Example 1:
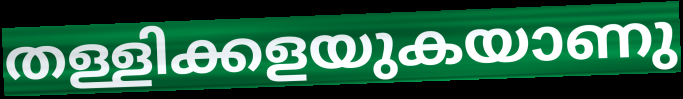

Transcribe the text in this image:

തള്ളിക്കളയുകയാണു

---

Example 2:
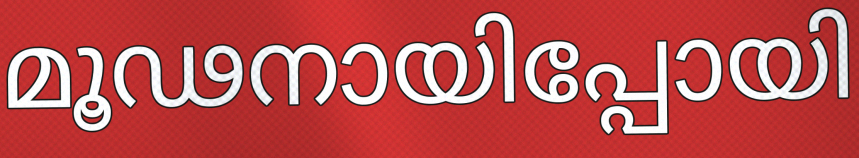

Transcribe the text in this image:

മൂഢനായിപ്പോയി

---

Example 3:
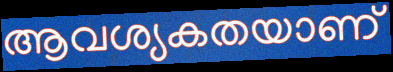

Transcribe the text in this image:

ആവശ്യകതയാണ്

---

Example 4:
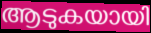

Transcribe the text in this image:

ആടുകയായി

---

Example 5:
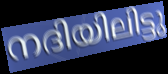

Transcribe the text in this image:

നദിയിലിട്ടു